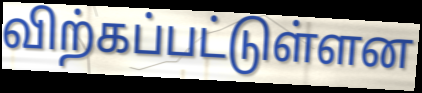
விற்கப்பட்டுள்ளன